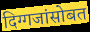
दिग्गजांसोबत